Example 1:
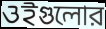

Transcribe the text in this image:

ওইগুলোর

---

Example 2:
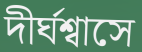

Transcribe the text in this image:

দীর্ঘশ্বাসে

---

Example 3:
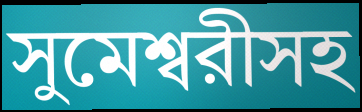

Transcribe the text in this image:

সুমেশ্বরীসহ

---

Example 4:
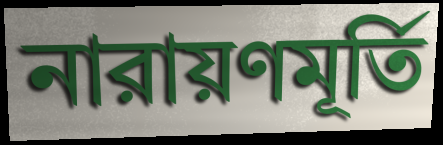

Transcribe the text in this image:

নারায়ণমূর্তি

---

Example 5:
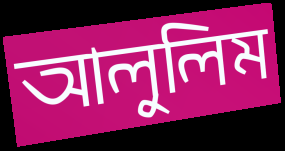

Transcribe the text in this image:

আলুলিম